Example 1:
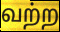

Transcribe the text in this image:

வற்ற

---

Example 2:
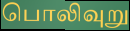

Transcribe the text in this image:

பொலிவுறு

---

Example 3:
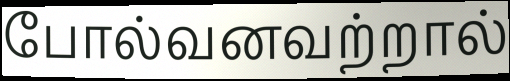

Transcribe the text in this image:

போல்வனவற்றால்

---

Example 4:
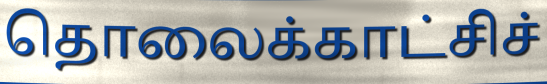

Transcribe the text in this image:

தொலைக்காட்சிச்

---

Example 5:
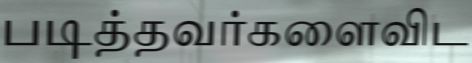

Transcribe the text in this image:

படித்தவர்களைவிட